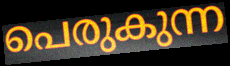
പെരുകുന്ന